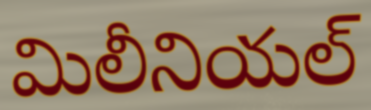
మిలీనియల్